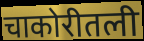
चाकोरीतली